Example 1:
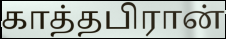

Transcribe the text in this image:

காத்தபிரான்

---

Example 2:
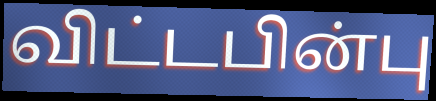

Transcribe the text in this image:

விட்டபின்பு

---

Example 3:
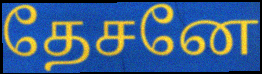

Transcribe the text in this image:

தேசனே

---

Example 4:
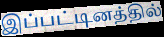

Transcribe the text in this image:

இப்பட்டினத்தில்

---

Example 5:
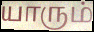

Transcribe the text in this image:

யாரும்